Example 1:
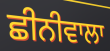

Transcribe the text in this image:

ਛੀਨੀਵਾਲਾ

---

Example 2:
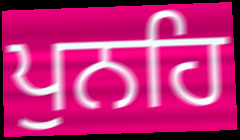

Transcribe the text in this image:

ਪੁਨਹਿ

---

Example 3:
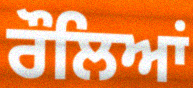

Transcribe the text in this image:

ਰੌਲਿਆਂ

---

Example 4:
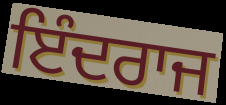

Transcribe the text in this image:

ਇੰਦਰਾਜ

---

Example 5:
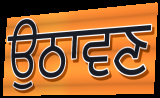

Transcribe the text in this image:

ਉਠਾਵਣ